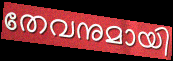
തേവനുമായി